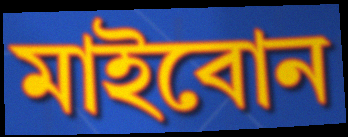
মাইবোন